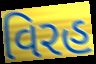
વિરહ